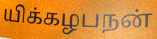
யிக்கழபநன்